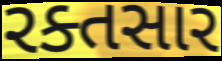
રક્તસાર